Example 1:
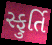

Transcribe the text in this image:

સ્ફુર્તિ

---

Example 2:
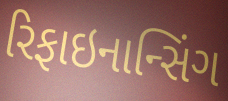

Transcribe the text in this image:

રિફાઇનાન્સિંગ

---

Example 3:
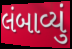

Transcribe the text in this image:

લંબાવ્યું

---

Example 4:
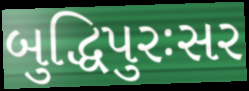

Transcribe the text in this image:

બુદ્ધિપુરઃસર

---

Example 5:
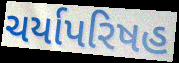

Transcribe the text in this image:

ચર્યાપરિષહ